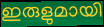
ഇരുളുമായി